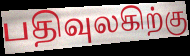
பதிவுலகிற்கு